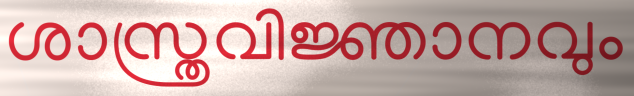
ശാസ്ത്രവിജ്ഞാനവും